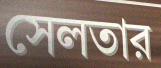
সেলতার